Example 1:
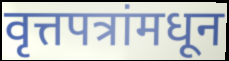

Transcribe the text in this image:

वृत्तपत्रांमधून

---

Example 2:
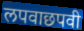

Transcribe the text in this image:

लपवाछपवी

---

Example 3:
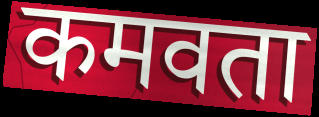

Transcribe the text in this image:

कमवता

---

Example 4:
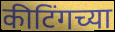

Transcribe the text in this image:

कीटिंगच्या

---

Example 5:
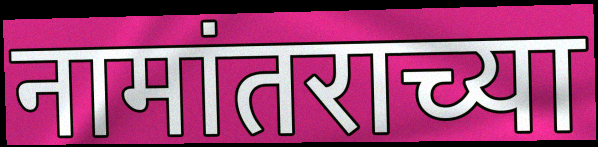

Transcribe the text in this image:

नामांतराच्या